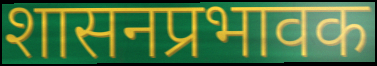
शासनप्रभावक